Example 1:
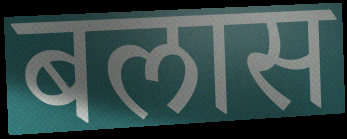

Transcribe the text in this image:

बलास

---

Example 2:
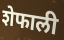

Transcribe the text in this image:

शेफाली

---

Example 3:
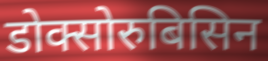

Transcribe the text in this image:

डोक्सोरुबिसिन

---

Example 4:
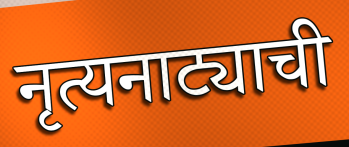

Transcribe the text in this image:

नृत्यनाट्याची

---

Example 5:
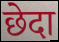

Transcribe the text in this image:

छेदा